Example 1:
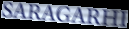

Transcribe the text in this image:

SARAGARHI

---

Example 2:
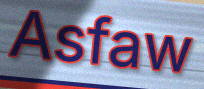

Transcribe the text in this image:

Asfaw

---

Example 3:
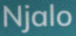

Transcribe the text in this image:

Njalo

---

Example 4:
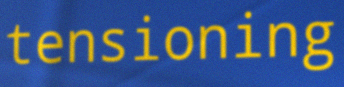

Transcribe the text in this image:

tensioning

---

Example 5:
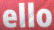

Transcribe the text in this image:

ello